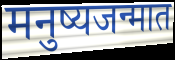
मनुष्यजन्मात